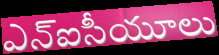
ఎన్ఐసీయూలు